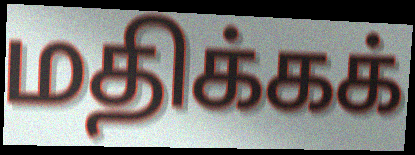
மதிக்கக்